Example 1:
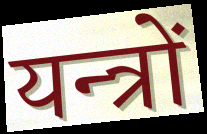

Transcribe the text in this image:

यन्त्रों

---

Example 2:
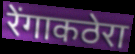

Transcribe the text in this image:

रेंगाकठेरा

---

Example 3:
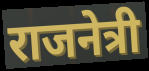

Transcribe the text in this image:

राजनेत्री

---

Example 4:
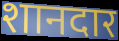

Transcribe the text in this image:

शानदार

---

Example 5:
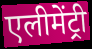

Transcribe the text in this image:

एलीमेंट्री